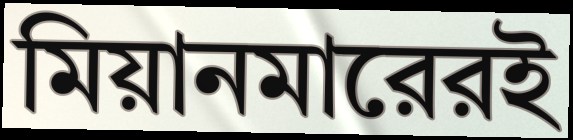
মিয়ানমারেরই